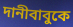
দানীবাবুকে